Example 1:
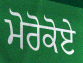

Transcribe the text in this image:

ਮੋਰੋਕੋਏ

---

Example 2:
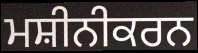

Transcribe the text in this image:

ਮਸ਼ੀਨੀਕਰਨ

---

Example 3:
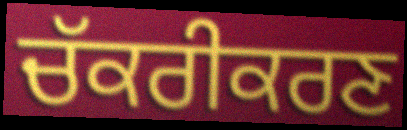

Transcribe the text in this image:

ਚੱਕਰੀਕਰਣ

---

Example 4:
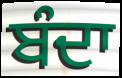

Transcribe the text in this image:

ਬੰਦਾ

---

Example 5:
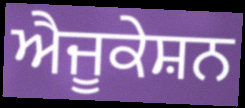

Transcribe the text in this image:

ਐਜੂਕੇਸ਼ਨ